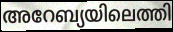
അറേബ്യയിലെത്തി